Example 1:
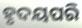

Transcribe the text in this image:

ହୃଦୟପରି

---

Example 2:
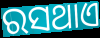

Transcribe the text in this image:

ରସଥାଏ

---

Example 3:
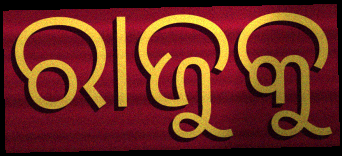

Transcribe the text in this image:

ରାଜୁକୁ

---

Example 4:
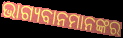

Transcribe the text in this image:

ଭାଗ୍ୟବାନମାନଙ୍କର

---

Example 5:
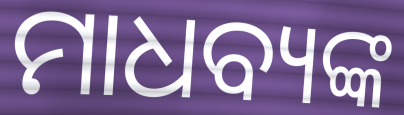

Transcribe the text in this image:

ମାଧବ୍ୟଙ୍କ